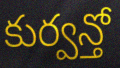
కుర్వన్తో